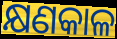
କ୍ଷଣକାଳ